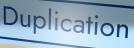
Duplication